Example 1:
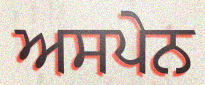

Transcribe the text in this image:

ਅਸਪੇਨ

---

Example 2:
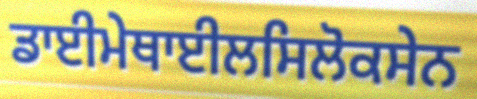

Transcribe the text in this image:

ਡਾਈਮੇਥਾਈਲਸਿਲੋਕਸੇਨ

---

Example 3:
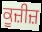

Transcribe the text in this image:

ਕੂਜ਼ੀਜ਼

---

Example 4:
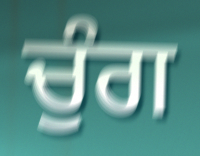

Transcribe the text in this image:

ਚੁੰਗ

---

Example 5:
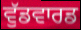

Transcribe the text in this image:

ਵੁੱਡਵਾਰਡ